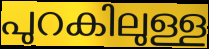
പുറകിലുള്ള